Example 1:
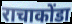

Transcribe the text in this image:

राचाकोंडा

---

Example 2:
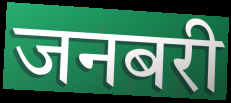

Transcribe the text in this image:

जनबरी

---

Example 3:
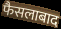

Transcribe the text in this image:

फैसलाबाद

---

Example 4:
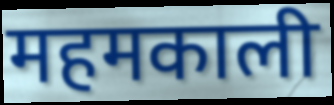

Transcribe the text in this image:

महमकाली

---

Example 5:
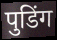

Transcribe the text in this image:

पुडिंग